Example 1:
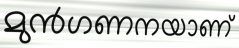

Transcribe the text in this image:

മുൻഗണനയാണ്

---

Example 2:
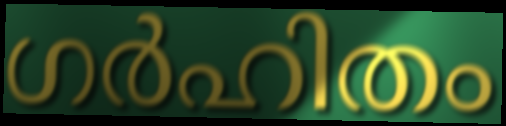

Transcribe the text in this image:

ഗർഹിതം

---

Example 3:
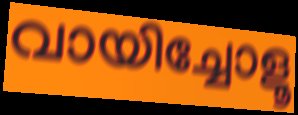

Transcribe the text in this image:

വായിച്ചോളൂ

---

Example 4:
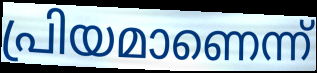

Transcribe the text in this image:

പ്രിയമാണെന്ന്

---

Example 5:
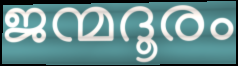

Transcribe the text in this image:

ജന്മദൂരം